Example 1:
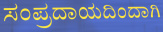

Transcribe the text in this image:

ಸಂಪ್ರದಾಯದಿಂದಾಗಿ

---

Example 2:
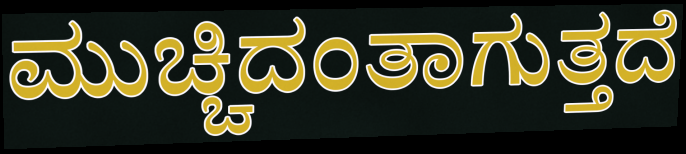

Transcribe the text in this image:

ಮುಚ್ಚಿದಂತಾಗುತ್ತದೆ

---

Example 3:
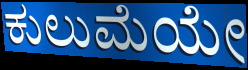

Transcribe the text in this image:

ಕುಲುಮೆಯೇ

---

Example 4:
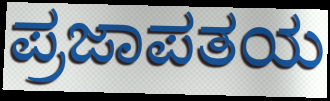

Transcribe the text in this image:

ಪ್ರಜಾಪತಯ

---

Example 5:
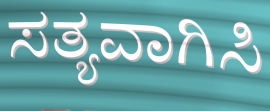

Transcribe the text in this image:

ಸತ್ಯವಾಗಿಸಿ